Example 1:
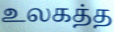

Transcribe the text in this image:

உலகத்த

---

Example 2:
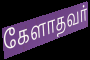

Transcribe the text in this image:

கேளாதவர்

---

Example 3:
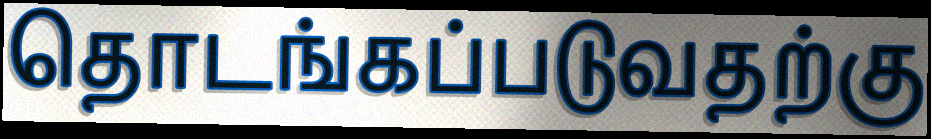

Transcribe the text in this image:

தொடங்கப்படுவதற்கு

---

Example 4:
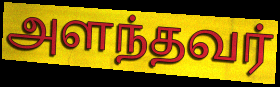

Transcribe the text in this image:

அளந்தவர்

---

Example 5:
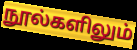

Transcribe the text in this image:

நூல்களிலும்